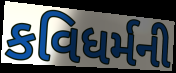
કવિધર્મની